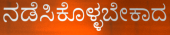
ನಡೆಸಿಕೊಳ್ಳಬೇಕಾದ